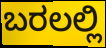
ಬರಲಲ್ಲಿ